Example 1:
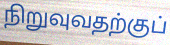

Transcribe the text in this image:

நிறுவுவதற்குப்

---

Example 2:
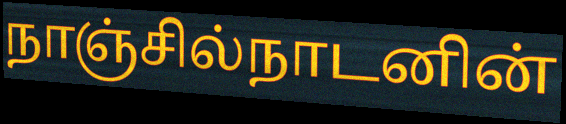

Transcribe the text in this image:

நாஞ்சில்நாடனின்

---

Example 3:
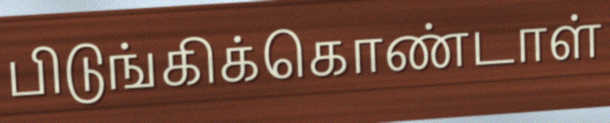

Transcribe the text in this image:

பிடுங்கிக்கொண்டாள்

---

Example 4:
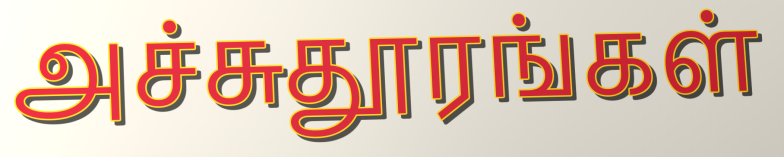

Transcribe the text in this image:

அச்சுதூரங்கள்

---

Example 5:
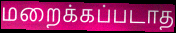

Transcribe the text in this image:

மறைக்கப்படாத